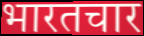
भारतचार